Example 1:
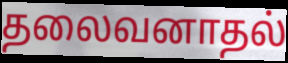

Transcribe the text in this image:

தலைவனாதல்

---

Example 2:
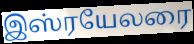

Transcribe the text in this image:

இஸ்ரயேலரை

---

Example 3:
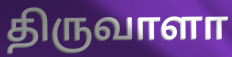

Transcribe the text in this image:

திருவாளா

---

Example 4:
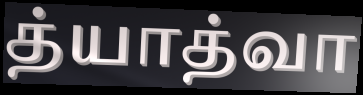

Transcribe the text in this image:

த்யாத்வா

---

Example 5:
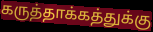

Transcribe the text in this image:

கருத்தாக்கத்துக்கு